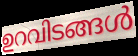
ഉറവിടങ്ങൾ